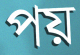
পয়